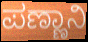
ಪಣ್ಣಾನಿ